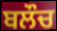
ਬਲੌਚ